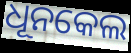
ଧୂନକେଲ